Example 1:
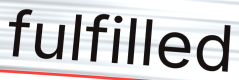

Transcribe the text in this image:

fulfilled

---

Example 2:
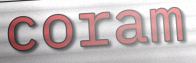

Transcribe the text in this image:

coram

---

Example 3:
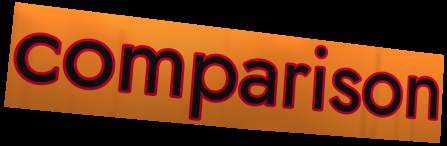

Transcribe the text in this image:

comparison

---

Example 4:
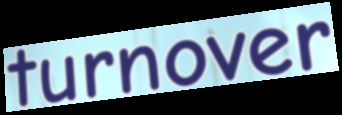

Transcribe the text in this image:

turnover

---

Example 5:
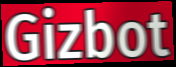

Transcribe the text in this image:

Gizbot